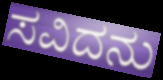
ಸವಿದನು